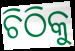
ଚିଠିକୁ